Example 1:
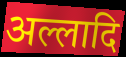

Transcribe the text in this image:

अल्लादि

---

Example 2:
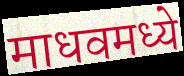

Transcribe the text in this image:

माधवमध्ये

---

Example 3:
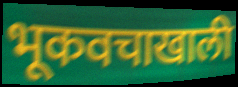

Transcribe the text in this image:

भूकवचाखाली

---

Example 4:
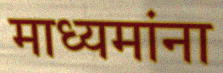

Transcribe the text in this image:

माध्यमांना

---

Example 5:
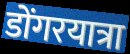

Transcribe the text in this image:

डोंगरयात्रा